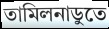
তামিলনাডুতে